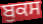
ਬੁਕਸ